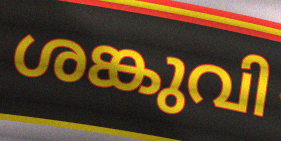
ശങ്കുവി